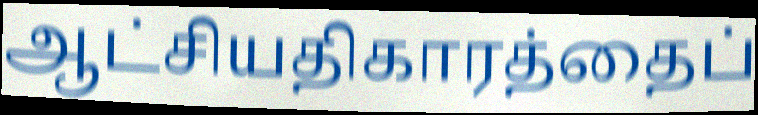
ஆட்சியதிகாரத்தைப்